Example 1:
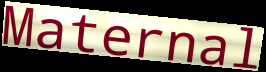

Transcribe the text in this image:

Maternal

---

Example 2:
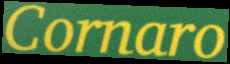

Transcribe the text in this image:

Cornaro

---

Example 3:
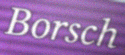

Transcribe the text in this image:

Borsch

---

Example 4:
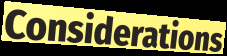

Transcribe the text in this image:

Considerations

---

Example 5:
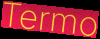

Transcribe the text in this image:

Termo